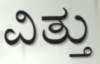
ವಿತ್ತು